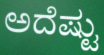
ಅದೆಷ್ಟು